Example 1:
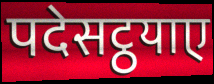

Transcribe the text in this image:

पदेसट्ठयाए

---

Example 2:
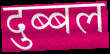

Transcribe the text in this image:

दुब्बल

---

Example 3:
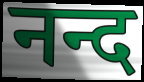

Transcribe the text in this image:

नन्द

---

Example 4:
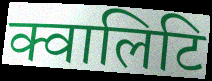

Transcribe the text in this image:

क्वालिटि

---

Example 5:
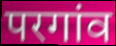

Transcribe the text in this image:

परगांव